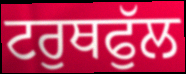
ਟਰੁਥਫੁੱਲ